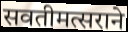
सवतीमत्सराने